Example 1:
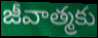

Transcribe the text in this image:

జీవాత్మకు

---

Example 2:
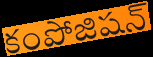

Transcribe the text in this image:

కంపోజిషన్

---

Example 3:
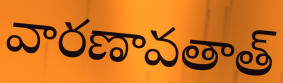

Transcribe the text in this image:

వారణావతాత్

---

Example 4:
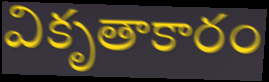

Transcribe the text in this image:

వికృతాకారం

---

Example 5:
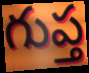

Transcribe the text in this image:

గుప్త